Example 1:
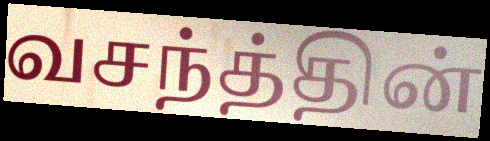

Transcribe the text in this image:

வசந்த்தின்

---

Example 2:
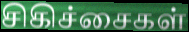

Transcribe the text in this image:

சிகிச்சைகள்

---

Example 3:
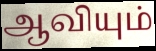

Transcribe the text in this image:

ஆவியும்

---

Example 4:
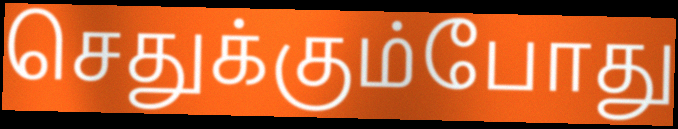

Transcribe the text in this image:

செதுக்கும்போது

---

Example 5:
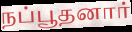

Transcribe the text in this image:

நப்பூதனார்